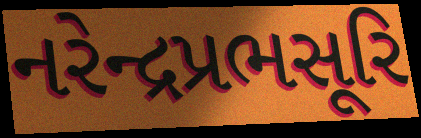
નરેન્દ્રપ્રભસૂરિ